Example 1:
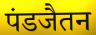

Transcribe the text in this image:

पंडजैतन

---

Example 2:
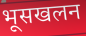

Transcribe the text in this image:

भूसखलन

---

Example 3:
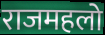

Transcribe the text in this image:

राजमहलो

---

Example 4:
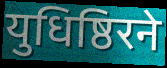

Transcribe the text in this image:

युधिष्ठिरने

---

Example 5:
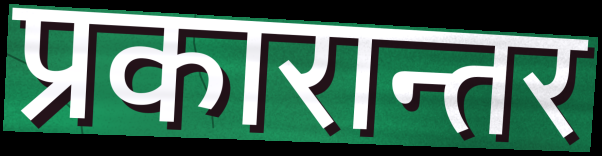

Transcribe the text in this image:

प्रकारान्तर